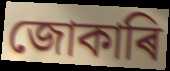
জোকাৰি